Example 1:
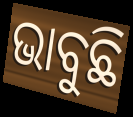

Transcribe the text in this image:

ଭାବୁଛି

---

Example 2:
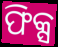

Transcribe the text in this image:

ଫିକ୍ସ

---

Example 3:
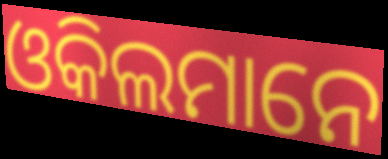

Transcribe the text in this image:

ଓକିଲମାନେ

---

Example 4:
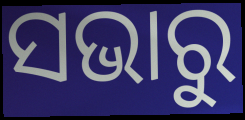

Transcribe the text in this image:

ସଭାରୁ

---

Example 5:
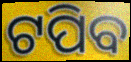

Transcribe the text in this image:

ଟପିବ